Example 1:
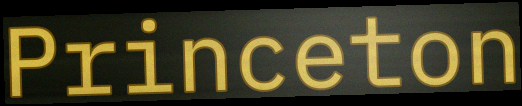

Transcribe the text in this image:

Princeton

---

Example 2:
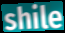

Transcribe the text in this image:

shile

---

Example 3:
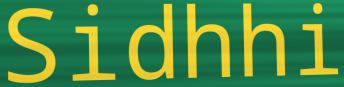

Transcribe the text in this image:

Sidhhi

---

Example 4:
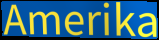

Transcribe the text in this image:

Amerika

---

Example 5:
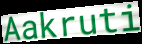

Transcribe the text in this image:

Aakruti